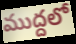
ముద్దలో